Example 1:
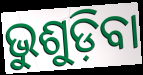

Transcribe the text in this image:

ଭୁଶୁଡ଼ିବା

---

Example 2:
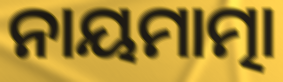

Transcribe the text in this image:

ନାୟମାତ୍ମା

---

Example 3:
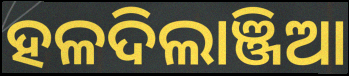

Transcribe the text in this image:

ହଳଦିଲାଞ୍ଜିଆ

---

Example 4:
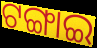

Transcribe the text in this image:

ଟଙ୍ଗାଇ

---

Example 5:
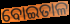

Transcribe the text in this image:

ବୋଇତାଳ